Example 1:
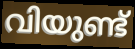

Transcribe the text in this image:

വിയുണ്ട്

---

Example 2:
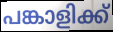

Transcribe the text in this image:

പങ്കാളിക്ക്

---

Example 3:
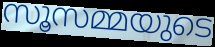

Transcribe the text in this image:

സൂസമ്മയുടെ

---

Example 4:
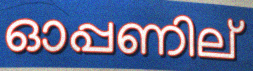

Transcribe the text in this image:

ഓപ്പണില്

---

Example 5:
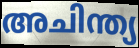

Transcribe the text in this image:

അചിന്ത്യ